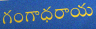
గంగాధరాయ